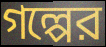
গল্পের